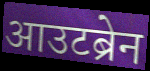
आउटब्रेन